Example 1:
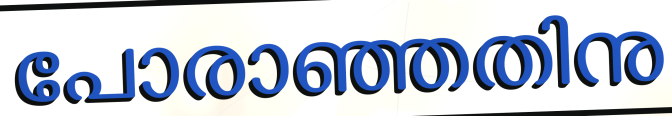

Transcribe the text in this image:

പോരാഞ്ഞതിനു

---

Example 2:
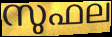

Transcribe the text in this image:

സുഫല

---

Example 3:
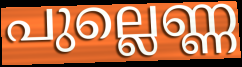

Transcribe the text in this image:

പുല്ലെണ്ണ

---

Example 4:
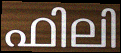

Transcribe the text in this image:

ഫിലി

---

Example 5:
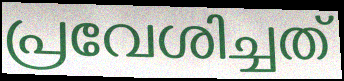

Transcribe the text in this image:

പ്രവേശിച്ചത്